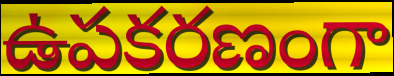
ఉపకరణంగా